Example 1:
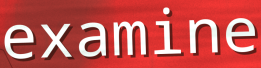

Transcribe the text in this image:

examine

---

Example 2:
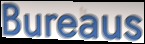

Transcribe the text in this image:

Bureaus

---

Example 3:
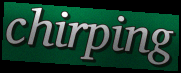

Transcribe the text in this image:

chirping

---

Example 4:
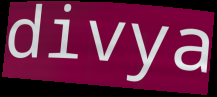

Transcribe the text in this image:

divya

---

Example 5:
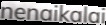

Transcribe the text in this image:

nenaikalai